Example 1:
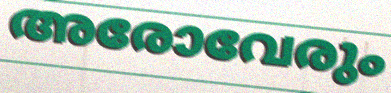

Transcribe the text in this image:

അരോവേരും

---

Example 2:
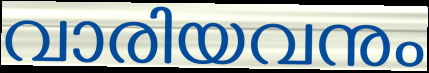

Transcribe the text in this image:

വാരിയവനും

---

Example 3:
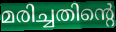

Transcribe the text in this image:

മരിച്ചതിന്റെ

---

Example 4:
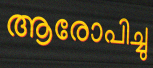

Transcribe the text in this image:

ആരോപിച്ചു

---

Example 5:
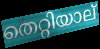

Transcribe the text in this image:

തെറ്റിയാല്